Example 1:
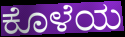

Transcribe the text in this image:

ಕೊಳೆಯ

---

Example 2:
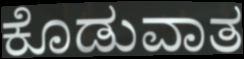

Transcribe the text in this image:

ಕೊಡುವಾತ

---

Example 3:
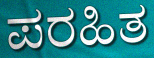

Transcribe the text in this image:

ಪರಹಿತ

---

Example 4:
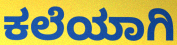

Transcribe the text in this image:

ಕಲೆಯಾಗಿ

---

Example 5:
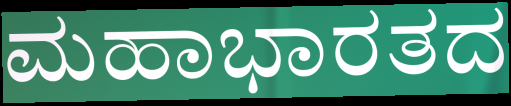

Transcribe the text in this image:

ಮಹಾಭಾರತದ